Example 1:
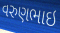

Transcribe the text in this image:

વરુણભાઇ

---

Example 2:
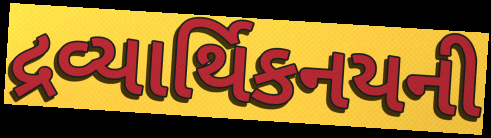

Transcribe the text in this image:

દ્રવ્યાર્થિકનયની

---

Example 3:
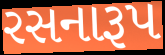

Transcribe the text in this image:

રસનારૂપ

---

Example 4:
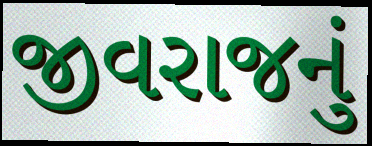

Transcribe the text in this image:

જીવરાજનું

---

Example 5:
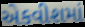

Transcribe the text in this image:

એકવીશમાં